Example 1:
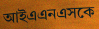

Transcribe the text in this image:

আইএএনএসকে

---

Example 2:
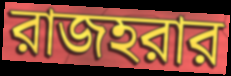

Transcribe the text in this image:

রাজহরার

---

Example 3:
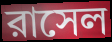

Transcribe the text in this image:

রাসেল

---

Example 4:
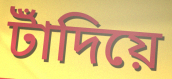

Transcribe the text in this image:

টাঁদিয়ে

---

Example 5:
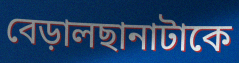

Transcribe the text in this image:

বেড়ালছানাটাকে